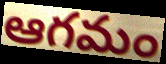
ఆగమం